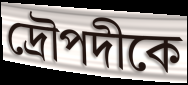
দ্রৌপদীকে